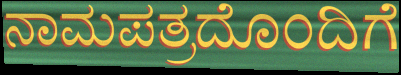
ನಾಮಪತ್ರದೊಂದಿಗೆ